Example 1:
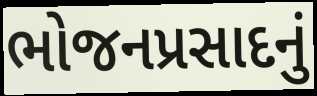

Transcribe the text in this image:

ભોજનપ્રસાદનું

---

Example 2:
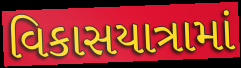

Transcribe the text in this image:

વિકાસયાત્રામાં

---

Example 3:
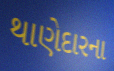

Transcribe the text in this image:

થાણેદારના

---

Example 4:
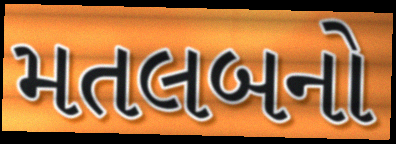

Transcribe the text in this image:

મતલબનો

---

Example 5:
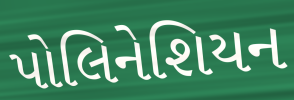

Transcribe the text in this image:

પોલિનેશિયન